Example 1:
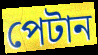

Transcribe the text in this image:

পেটান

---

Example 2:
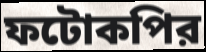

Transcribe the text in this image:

ফটোকপির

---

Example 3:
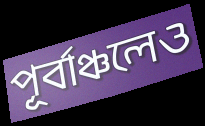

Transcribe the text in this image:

পূর্বাঞ্চলেও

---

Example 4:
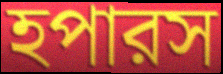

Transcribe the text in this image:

হপারস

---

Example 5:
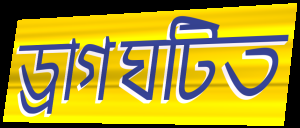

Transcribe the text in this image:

ড্রাগঘটিত